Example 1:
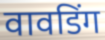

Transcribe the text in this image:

वावडिंग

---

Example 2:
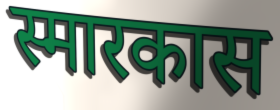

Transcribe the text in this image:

स्मारकास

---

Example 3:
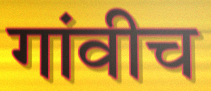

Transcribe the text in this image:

गांवीच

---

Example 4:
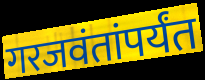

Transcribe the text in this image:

गरजवंतांपर्यंत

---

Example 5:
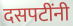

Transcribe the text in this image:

दसपटींनी